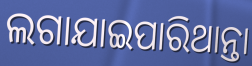
ଲଗାଯାଇପାରିଥାନ୍ତା